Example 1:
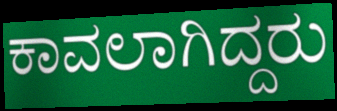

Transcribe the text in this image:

ಕಾವಲಾಗಿದ್ದರು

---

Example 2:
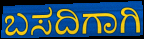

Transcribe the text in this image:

ಬಸದಿಗಾಗಿ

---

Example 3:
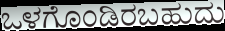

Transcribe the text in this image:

ಒಳಗೊಂಡಿರಬಹುದು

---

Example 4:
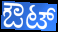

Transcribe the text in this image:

ಔಟ್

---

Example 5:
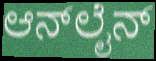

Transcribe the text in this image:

ಆನ್‍ಲೈನ್